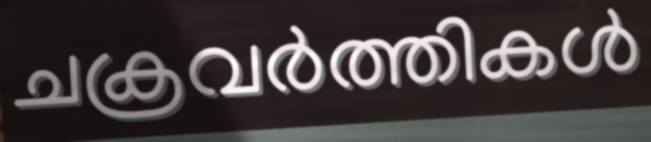
ചക്രവർത്തികൾ